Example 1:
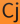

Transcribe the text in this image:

Cj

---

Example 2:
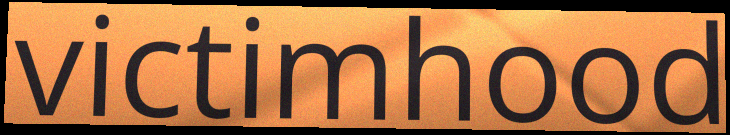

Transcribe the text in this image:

victimhood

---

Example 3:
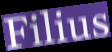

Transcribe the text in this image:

Filius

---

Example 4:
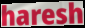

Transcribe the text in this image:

haresh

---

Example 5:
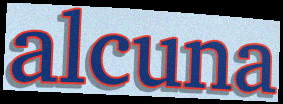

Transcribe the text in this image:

alcuna